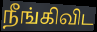
நீங்கிவிட